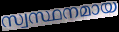
സ്വസ്ഥനമായ